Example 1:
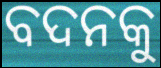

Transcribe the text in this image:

ବଦନକୁ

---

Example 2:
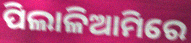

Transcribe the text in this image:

ପିଲାଳିଆମିରେ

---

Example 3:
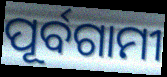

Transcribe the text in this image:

ପୂର୍ବଗାମୀ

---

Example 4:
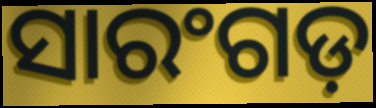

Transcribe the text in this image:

ସାରଂଗଡ଼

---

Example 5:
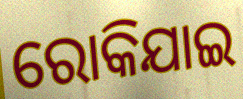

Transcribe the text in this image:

ରୋକିଯାଇ